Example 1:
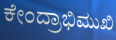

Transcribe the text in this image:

ಕೇಂದ್ರಾಭಿಮುಖಿ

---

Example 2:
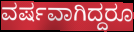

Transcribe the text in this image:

ವರ್ಷವಾಗಿದ್ದರೂ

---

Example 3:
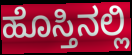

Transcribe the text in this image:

ಹೊಸ್ತಿನಲ್ಲಿ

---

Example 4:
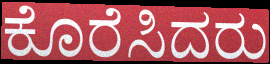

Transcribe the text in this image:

ಕೊರೆಸಿದರು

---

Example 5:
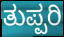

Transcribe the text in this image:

ತುಪ್ಪರಿ